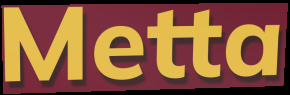
Metta